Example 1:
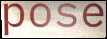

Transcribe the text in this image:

pose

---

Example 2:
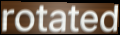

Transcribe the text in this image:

rotated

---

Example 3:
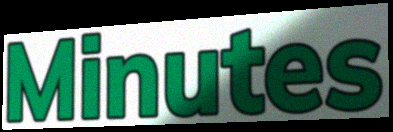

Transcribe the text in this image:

Minutes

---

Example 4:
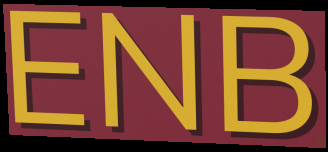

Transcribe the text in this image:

ENB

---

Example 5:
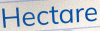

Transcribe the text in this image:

Hectare